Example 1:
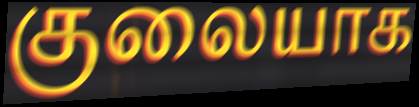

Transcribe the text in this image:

குலையாக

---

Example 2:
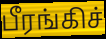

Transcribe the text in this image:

பீரங்கிச்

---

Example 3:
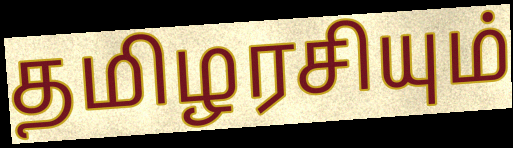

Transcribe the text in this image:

தமிழரசியும்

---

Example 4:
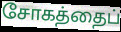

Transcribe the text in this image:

சோகத்தைப்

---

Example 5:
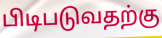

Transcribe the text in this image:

பிடிபடுவதற்கு